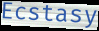
Ecstasy